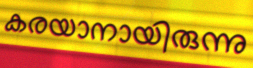
കരയാനായിരുന്നു